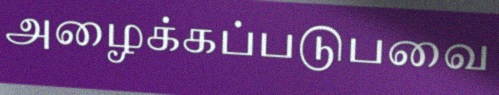
அழைக்கப்படுபவை